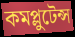
কমপ্লুটেন্স